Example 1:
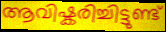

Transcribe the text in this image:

ആവിഷ്കരിച്ചിട്ടുണ്ട്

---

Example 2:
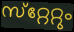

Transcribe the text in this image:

സ്‌റ്റേറ്റും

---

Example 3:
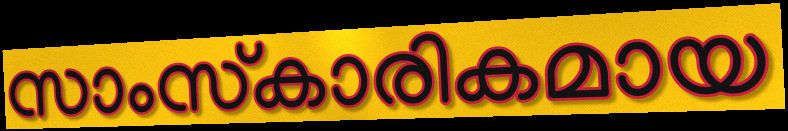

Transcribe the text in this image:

സാംസ്‌കാരികമായ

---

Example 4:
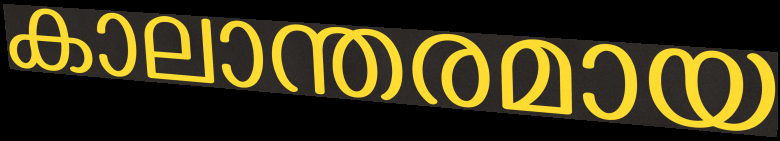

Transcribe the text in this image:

കാലാന്തരമായ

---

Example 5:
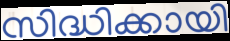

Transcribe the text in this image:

സിദ്ധിക്കായി